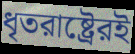
ধৃতরাষ্ট্রেরই